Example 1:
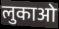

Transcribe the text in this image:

लुकाओ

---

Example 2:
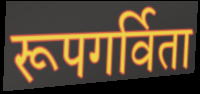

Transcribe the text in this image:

रूपगर्विता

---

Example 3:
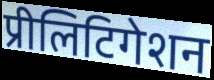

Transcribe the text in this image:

प्रीलिटिगेशन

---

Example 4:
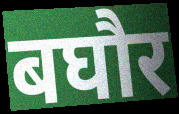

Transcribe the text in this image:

बघौर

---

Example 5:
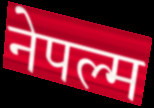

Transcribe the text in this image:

नेपल्म